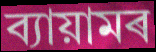
ব্যায়ামৰ